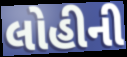
લોહીની